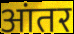
आंतर